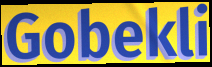
Gobekli